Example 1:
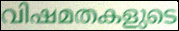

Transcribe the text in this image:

വിഷമതകളുടെ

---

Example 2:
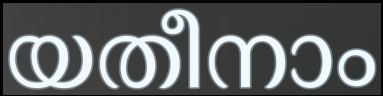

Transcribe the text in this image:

യതീനാം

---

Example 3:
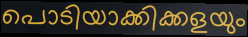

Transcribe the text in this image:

പൊടിയാക്കിക്കളയും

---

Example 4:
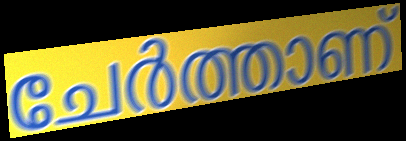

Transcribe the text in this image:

ചേർത്താണ്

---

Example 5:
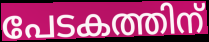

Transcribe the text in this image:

പേടകത്തിന്